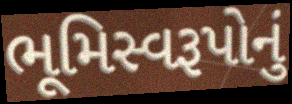
ભૂમિસ્વરૂપોનું